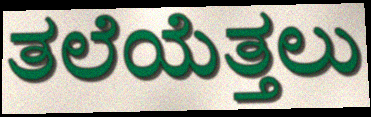
ತಲೆಯೆತ್ತಲು